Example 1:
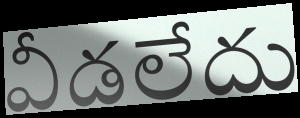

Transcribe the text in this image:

వీడలేదు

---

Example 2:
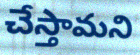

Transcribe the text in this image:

చేస్తామని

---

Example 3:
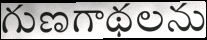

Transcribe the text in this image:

గుణగాథలను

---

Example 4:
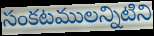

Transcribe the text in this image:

సంకటములన్నిటిని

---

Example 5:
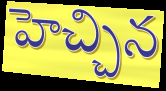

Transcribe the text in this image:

హెచ్చిన